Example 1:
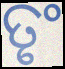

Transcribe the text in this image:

ତୃଂ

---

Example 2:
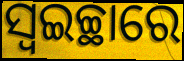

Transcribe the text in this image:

ସ୍ୱଇଚ୍ଛାରେ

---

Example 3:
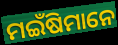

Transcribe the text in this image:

ମଇଁଷିମାନେ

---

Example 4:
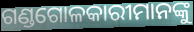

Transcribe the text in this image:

ଗଣ୍ଡଗୋଳକାରୀମାନଙ୍କୁ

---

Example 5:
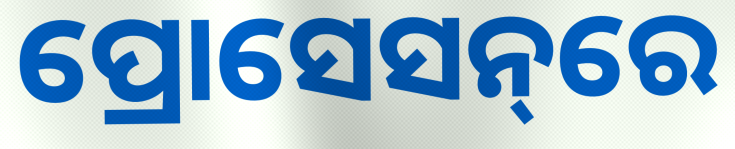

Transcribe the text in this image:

ପ୍ରୋସେସନ୍‌ରେ